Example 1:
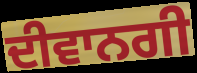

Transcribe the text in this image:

ਦੀਵਾਨਗੀ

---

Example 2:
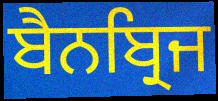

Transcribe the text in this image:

ਬੈਨਬ੍ਰਿਜ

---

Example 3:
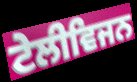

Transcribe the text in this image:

ਟੇਲੀਵਿਜਨ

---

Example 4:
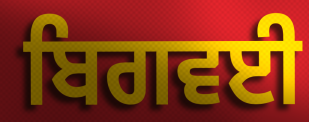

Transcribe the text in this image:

ਬਿਗਵਈ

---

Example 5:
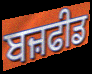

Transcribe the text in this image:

ਬਜ਼ਫੀਡ